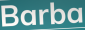
Barba